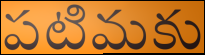
పటిమకు